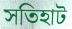
সতিহাট